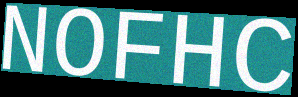
NOFHC